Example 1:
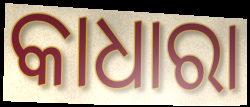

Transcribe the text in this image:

କାଧାରା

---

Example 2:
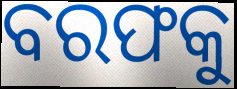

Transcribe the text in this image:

ବରଫକୁ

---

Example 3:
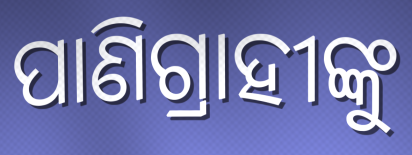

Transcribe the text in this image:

ପାଣିଗ୍ରାହୀଙ୍କୁ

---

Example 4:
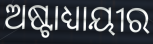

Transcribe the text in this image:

ଅଷ୍ଟାଧ୍ଯାୟୀର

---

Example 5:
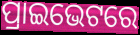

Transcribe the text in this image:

ପ୍ରାଇଭେଟରେ